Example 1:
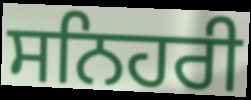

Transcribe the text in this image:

ਸਨਿਹਰੀ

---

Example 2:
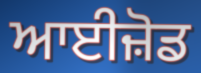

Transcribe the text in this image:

ਆਈਜ਼ੋਡ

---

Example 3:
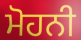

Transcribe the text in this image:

ਮੋਹਨੀ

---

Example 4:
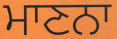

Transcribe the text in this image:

ਮਾਣਨਾ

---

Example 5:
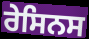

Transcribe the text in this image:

ਰੇਸਿਨਸ